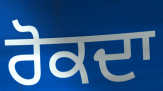
ਰੋਕਦਾ